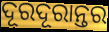
ଦୂରଦୂରାନ୍ତର